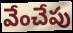
వేంచేపు